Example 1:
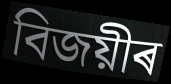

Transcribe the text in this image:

বিজয়ীৰ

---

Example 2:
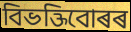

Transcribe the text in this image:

বিভক্তিবোৰৰ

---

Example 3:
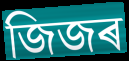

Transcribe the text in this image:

জিজৰ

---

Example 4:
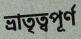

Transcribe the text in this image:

ভ্ৰাতৃত্বপূৰ্ণ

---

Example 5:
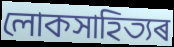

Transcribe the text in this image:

লোকসাহিত্যৰ